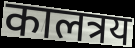
कालत्रय